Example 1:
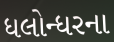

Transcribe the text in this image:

ધલોન્ધરના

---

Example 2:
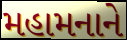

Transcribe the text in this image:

મહામનાને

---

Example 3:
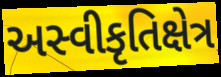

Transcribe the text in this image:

અસ્વીકૃતિક્ષેત્ર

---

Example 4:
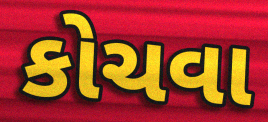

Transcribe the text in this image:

કોચવા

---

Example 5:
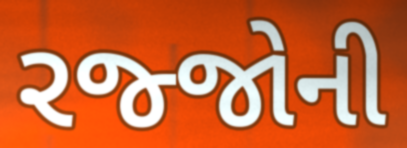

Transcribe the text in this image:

રજ્જોની